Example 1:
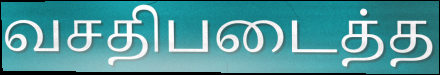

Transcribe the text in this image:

வசதிபடைத்த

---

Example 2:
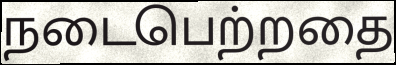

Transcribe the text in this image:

நடைபெற்றதை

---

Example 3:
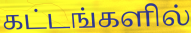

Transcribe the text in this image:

கட்டங்களில்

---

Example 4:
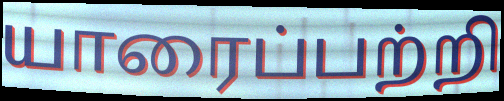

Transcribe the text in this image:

யாரைப்பற்றி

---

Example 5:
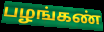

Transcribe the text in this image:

பழங்கண்